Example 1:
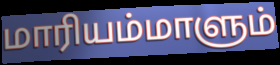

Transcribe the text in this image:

மாரியம்மாளும்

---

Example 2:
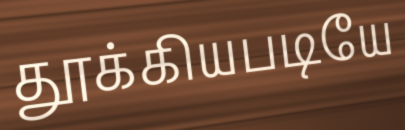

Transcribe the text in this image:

தூக்கியபடியே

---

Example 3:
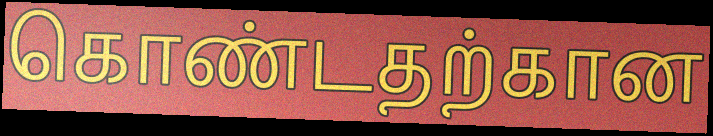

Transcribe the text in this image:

கொண்டதற்கான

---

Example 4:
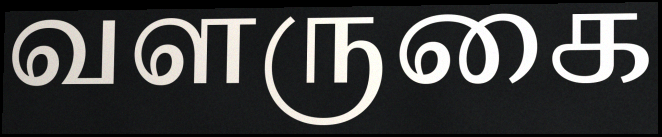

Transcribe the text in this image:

வளருகை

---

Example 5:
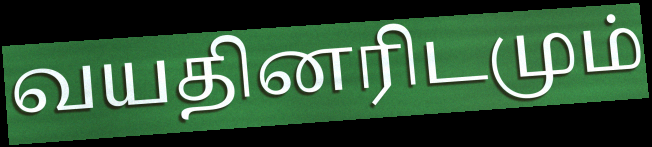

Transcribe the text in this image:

வயதினரிடமும்